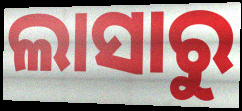
ଲାସାରୁ